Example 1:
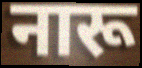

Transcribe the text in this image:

नारू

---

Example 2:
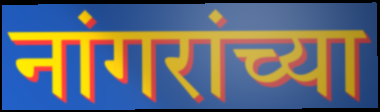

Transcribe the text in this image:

नांगरांच्या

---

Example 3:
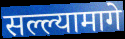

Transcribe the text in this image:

सल्ल्यामागे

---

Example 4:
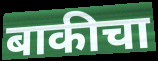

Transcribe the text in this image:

बाकीचा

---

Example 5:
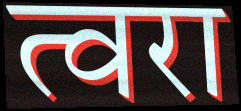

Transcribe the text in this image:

त्वरा